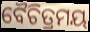
ବୈଚିତ୍ରମୟ